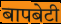
बापबेटी